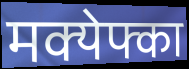
मक्येफ्का